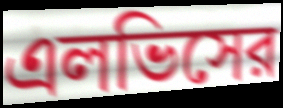
এলভিসের